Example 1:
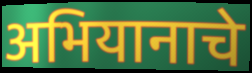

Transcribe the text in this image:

अभियानाचे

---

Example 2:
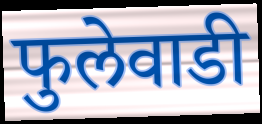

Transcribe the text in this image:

फुलेवाडी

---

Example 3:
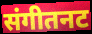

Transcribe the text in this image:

संगीतनट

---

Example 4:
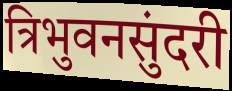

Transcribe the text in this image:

त्रिभुवनसुंदरी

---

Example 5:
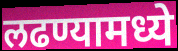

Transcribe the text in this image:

लढण्यामध्ये